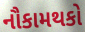
નૌકામથકો